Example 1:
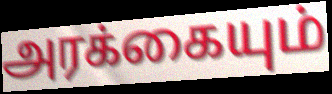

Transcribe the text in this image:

அரக்கையும்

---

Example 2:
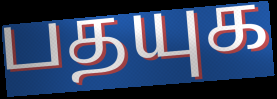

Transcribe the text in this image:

பதயுக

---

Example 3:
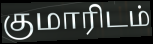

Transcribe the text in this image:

குமாரிடம்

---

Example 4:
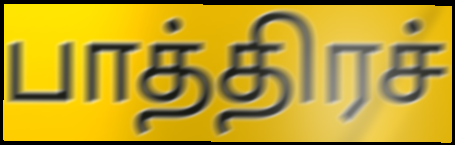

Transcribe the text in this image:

பாத்திரச்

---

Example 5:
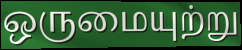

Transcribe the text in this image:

ஒருமையுற்று